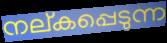
നല്കപ്പെടുന്ന